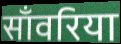
साँवरिया